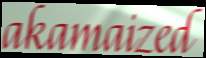
akamaized